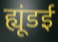
ह्यूंडई